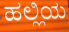
ಹಲ್ಲಿಯ